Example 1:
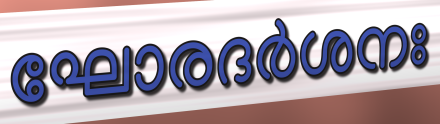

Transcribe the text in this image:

ഘോരദർശനഃ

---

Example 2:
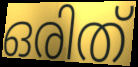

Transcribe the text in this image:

ഒരിത്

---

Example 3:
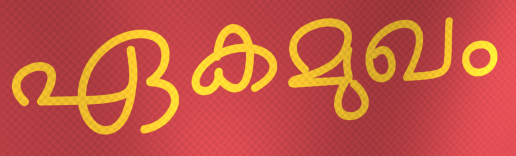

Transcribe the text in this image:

ഏകമുഖം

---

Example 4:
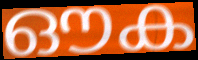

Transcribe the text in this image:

ഔക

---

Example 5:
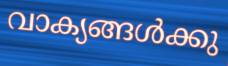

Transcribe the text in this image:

വാക്യങ്ങൾക്കു